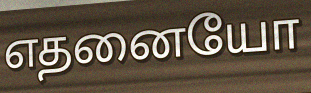
எதனையோ